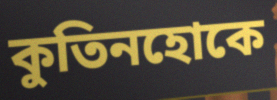
কুতিনহোকে